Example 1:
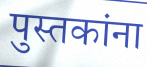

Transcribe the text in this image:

पुस्तकांना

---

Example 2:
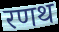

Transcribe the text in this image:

रणथ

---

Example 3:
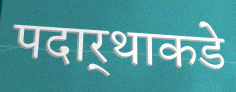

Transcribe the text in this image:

पदार्थाकडे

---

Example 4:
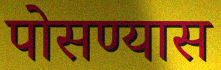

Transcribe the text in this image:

पोसण्यास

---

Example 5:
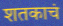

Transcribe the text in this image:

शतकाचं